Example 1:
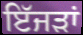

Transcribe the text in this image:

ਇੱਜੜਾਂ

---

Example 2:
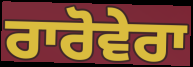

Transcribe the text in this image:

ਰਾਰੋਵੇਰਾ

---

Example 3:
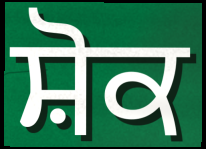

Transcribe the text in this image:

ਸ਼ੋਕ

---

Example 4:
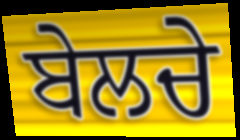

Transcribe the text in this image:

ਬੇਲਚੇ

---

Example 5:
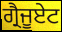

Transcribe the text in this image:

ਗ੍ਰੈਜੂਏਟ